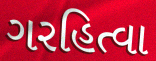
ગરહિત્વા